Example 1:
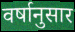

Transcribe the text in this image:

वर्षानुसार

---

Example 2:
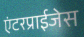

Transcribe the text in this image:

एंटरप्राईजेस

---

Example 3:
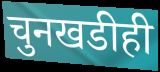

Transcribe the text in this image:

चुनखडीही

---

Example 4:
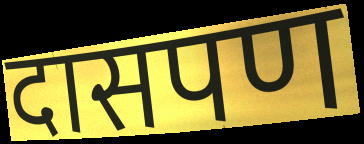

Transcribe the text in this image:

दासपण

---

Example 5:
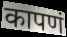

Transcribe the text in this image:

कापणं